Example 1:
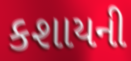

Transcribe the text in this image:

કશાયની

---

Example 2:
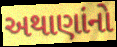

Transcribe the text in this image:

અથાણાંનો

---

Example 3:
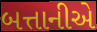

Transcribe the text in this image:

બત્તાનીએ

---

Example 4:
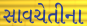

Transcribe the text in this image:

સાવચેતીના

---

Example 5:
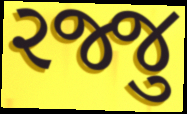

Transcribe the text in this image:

રજ્જુ